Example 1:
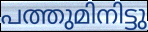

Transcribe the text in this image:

പത്തുമിനിട്ടു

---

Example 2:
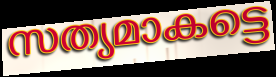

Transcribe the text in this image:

സത്യമാകട്ടെ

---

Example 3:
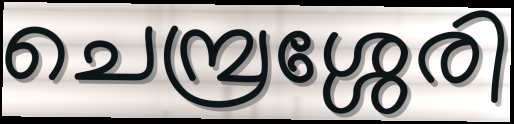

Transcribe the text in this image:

ചെമ്പ്രശ്ശേരി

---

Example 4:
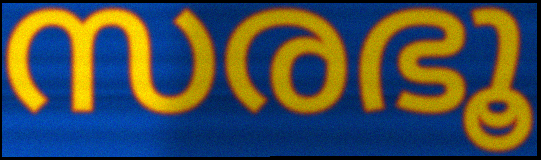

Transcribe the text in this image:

സരഭൂ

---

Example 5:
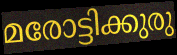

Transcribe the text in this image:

മരോട്ടിക്കുരു